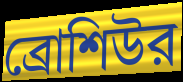
ব্রোশিউর